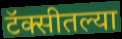
टॅक्सीतल्या